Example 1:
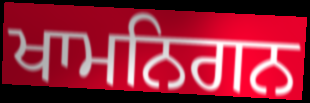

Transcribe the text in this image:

ਖਾਮਨਿਗਨ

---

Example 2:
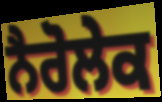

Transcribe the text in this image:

ਨੈਰੋਲੇਕ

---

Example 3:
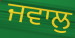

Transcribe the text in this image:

ਜਵਾਲੁ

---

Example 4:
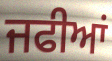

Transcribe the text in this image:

ਜਫੀਆਂ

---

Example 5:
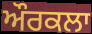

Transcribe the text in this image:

ਔਰਕਲਾ